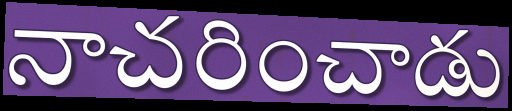
నాచరించాడు